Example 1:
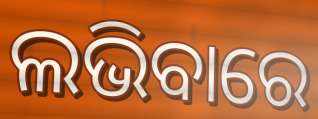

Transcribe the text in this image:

ଲଭିବାରେ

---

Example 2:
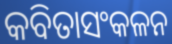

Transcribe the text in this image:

କବିତାସଂକଳନ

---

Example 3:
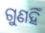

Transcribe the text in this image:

ଗୁଣହିଁ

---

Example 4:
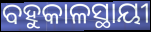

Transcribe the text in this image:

ବହୁକାଳସ୍ଥାୟୀ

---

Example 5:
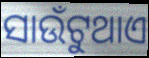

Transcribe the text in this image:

ସାଉଁଟୁଥାଏ